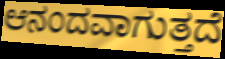
ಆನಂದವಾಗುತ್ತದೆ